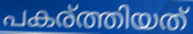
പകര്ത്തിയത്